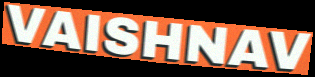
VAISHNAV